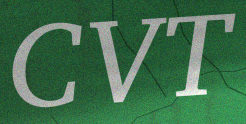
CVT